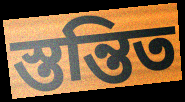
স্তন্তিত